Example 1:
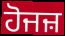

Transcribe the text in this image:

ਹੋਜਜ਼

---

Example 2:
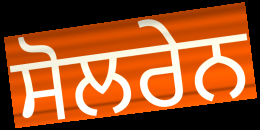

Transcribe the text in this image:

ਸੋਲਰੇਨ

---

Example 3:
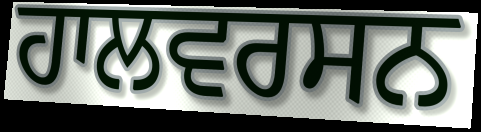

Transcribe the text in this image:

ਹਾਲਵਰਸਨ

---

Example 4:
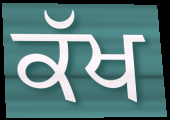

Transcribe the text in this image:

ਕੱਖ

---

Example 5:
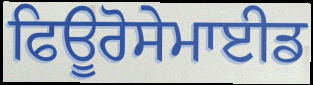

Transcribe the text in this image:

ਫਿਊਰੋਸੇਮਾਈਡ